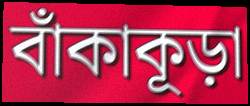
বাঁকাকূড়া